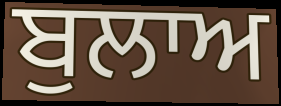
ਬੁਲਾਅ